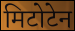
मिटोटेन